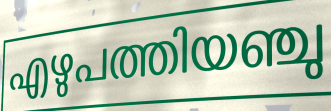
എഴുപത്തിയഞ്ചു